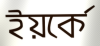
ইয়র্কে